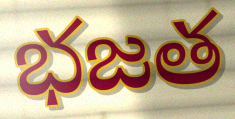
భజత